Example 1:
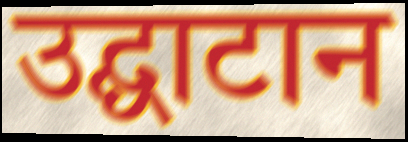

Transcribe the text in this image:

उद्घाटान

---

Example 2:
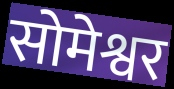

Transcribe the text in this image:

सोमेश्वर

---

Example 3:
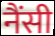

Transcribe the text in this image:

नैंसी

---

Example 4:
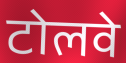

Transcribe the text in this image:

टोलवे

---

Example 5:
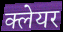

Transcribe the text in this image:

क्‍लेयर